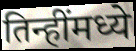
तिन्हींमध्ये